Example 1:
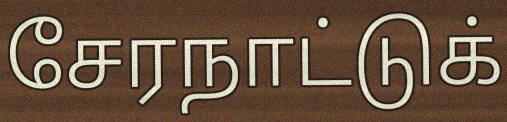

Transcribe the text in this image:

சேரநாட்டுக்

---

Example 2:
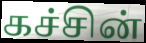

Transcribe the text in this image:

கச்சின்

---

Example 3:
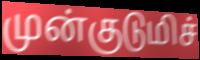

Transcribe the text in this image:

முன்குடுமிச்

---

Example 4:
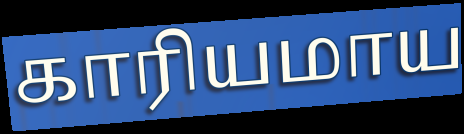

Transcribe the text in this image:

காரியமாய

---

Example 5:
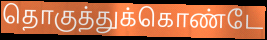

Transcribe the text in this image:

தொகுத்துக்கொண்டே